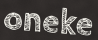
oneke